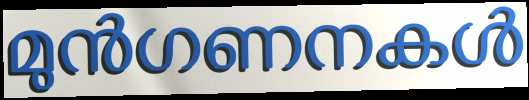
മുൻഗണനകൾ